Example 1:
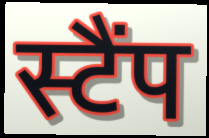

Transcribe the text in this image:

स्टैंप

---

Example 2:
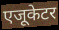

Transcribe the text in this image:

एजूकेटर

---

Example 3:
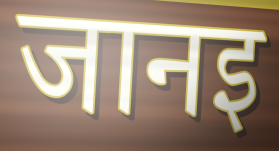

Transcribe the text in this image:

जानइ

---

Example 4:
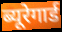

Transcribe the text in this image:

ब्यूरेगार्ड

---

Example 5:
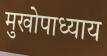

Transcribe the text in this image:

मुखोपाध्‍याय